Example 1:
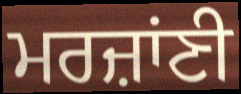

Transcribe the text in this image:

ਮਰਜ਼ਾਂਣੀ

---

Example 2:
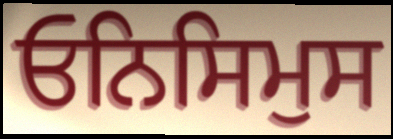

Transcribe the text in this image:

ਓਨਿਸਿਮੁਸ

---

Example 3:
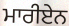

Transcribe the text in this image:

ਮਾਰੀਏਨ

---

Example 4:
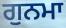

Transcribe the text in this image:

ਗੁਨਮਾ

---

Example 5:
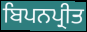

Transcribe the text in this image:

ਬਿਪਨਪ੍ਰੀਤ